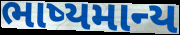
ભાષ્યમાન્ય